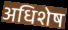
अधिशेष